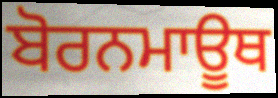
ਬੋਰਨਮਾਊਥ